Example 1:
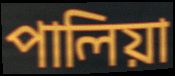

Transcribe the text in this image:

পালিয়া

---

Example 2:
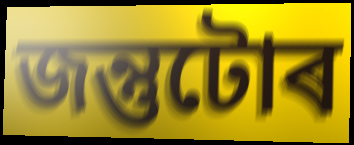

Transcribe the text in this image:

জন্তুটোৰ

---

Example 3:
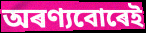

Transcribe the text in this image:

অৰণ্যবোৰেই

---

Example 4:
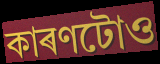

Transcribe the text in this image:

কাৰণটোও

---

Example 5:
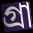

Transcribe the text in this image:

গ্ৰা